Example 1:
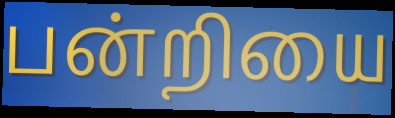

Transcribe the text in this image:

பன்றியை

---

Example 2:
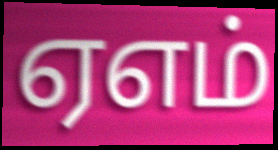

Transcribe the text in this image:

ஏஎம்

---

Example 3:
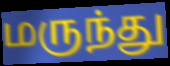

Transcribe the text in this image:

மருந்து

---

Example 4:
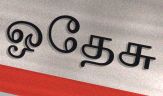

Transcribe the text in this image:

ஓதேசு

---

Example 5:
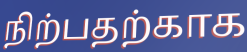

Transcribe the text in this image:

நிற்பதற்காக